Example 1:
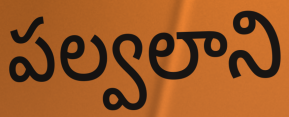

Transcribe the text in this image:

పల్వలాని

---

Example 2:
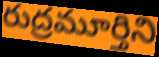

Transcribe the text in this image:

రుద్రమూర్తిని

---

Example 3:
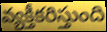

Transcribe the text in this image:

వ్యక్తీకరిస్తుంది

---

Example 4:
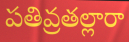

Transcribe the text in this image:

పతివ్రతల్లారా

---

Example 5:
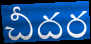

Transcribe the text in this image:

చీదర